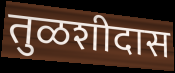
तुळशीदास